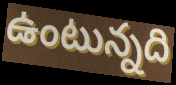
ఉంటున్నది